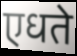
एधते